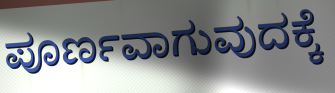
ಪೂರ್ಣವಾಗುವುದಕ್ಕೆ